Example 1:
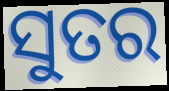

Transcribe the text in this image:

ସୁତର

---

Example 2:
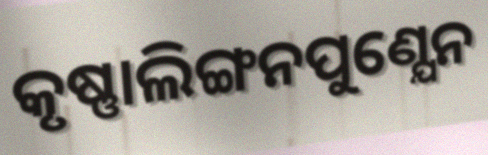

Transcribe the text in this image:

କୃଷ୍ଣାଲିଙ୍ଗନପୁଣ୍ଯେନ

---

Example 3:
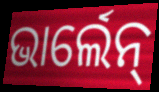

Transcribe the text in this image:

ଭାର୍ଲେନ୍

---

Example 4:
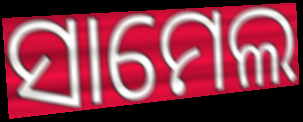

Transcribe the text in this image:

ସାମେଲ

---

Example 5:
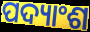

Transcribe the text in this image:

ପଦ୍ୟାଂଶ